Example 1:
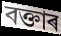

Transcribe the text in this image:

বক্তাৰ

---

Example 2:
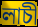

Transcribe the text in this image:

লাচী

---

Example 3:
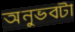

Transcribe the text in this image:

অনুভবটা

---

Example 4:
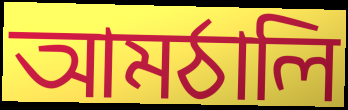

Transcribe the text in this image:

আমঠালি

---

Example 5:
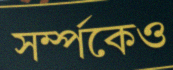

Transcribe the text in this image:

সৰ্ম্পকেও